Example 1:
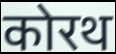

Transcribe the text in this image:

कोरथ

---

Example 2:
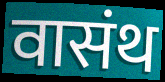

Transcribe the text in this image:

वासंथ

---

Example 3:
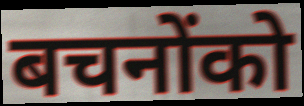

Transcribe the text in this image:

बचनोंको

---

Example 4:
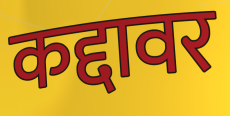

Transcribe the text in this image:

कद्दावर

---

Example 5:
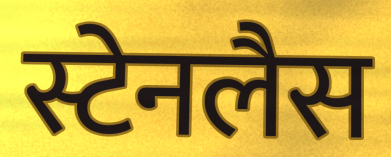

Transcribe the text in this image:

स्टेनलैस